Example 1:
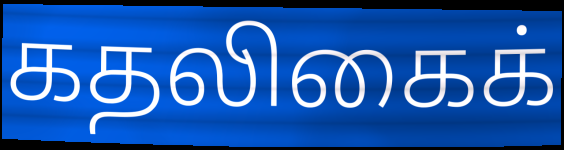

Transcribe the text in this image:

கதலிகைக்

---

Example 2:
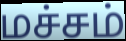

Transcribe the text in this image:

மச்சம்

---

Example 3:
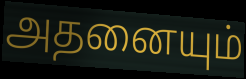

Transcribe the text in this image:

அதனையும்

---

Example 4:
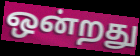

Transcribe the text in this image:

ஒன்றது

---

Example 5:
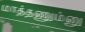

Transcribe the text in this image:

மாத்தணும்னு